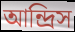
আন্দ্রিস